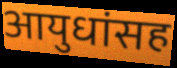
आयुधांसह